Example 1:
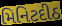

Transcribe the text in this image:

મિનિટદીઠ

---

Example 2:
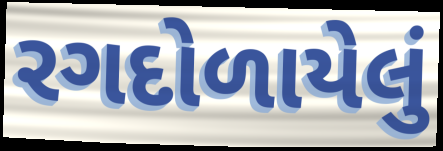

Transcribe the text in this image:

રગદોળાયેલું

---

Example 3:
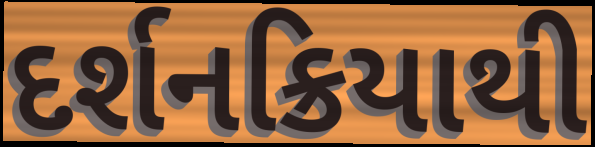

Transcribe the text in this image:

દર્શનક્રિયાથી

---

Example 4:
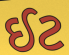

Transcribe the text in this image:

ઈટ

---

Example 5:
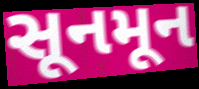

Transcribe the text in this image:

સૂનમૂન